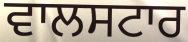
ਵਾਲਸਟਾਰ